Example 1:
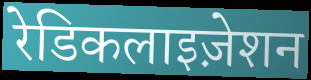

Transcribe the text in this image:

रेडिकलाइज़ेशन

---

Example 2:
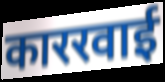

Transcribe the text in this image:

काररवाई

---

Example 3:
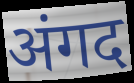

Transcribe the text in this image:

अंगद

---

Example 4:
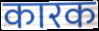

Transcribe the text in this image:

कारक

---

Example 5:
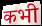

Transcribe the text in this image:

कभी